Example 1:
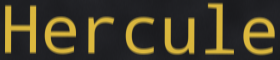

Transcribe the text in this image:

Hercule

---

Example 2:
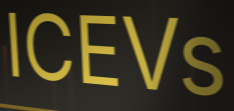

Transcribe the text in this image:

ICEVs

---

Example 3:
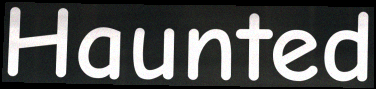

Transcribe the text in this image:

Haunted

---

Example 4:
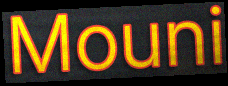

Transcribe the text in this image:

Mouni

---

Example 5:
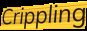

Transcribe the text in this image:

Crippling